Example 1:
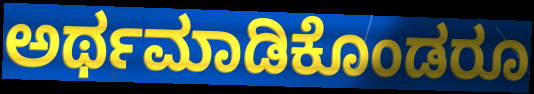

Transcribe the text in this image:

ಅರ್ಥಮಾಡಿಕೊಂಡರೂ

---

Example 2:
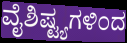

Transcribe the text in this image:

ವೈಶಿಷ್ಟ್ಯಗಳಿಂದ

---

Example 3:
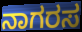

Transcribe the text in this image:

ನಾಗರಸ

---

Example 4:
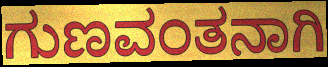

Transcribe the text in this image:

ಗುಣವಂತನಾಗಿ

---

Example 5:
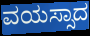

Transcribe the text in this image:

ವಯಸ್ಸಾದ